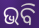
ଭବି